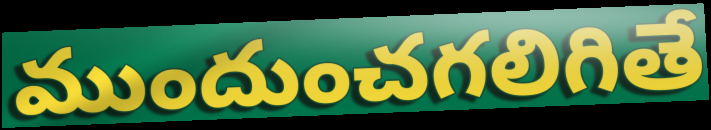
ముందుంచగలిగితే